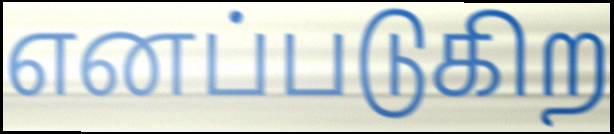
எனப்படுகிற